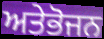
ਅਤੇਭੋਜਨ